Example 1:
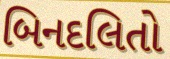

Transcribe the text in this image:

બિનદલિતો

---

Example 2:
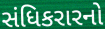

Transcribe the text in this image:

સંધિકરારનો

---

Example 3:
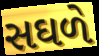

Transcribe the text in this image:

સઘળે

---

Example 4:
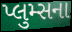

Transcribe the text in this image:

પ્લુમ્સના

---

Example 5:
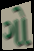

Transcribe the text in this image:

ગો